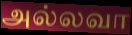
அல்லவா